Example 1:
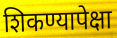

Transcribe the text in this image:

शिकण्यापेक्षा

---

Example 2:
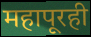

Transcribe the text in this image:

महापूरही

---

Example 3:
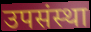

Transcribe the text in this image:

उपसंस्था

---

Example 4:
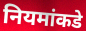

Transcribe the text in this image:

नियमांकडे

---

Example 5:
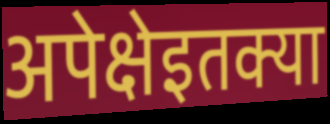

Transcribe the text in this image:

अपेक्षेइतक्या